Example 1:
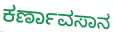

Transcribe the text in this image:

ಕರ್ಣಾವಸಾನ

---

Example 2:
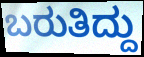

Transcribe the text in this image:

ಬರುತಿದ್ದು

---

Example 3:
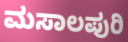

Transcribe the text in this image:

ಮಸಾಲಪುರಿ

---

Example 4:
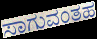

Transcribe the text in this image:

ಸಾಗುವಂತಹ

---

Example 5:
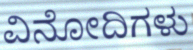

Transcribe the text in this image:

ವಿನೋದಿಗಳು